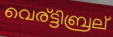
വെര്ട്ടിബ്രല്